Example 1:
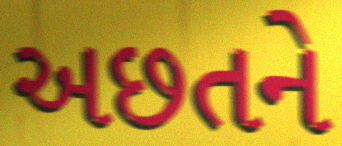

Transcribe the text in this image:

અછતને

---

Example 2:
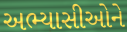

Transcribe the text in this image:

અભ્યાસીઓને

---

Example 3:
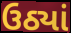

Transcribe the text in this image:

ઉઠ્યાં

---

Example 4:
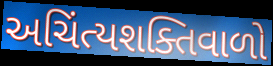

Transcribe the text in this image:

અચિંત્યશક્તિવાળો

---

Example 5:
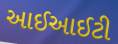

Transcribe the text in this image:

આઈઆઈટી